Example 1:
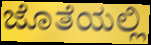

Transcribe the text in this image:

ಜೊತೆಯಲ್ಲಿ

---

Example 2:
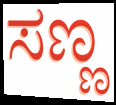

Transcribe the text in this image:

ಸಣ್ಣ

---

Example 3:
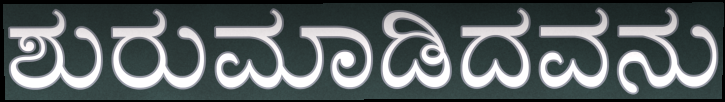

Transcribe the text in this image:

ಶುರುಮಾಡಿದವನು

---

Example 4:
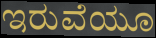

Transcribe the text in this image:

ಇರುವೆಯೂ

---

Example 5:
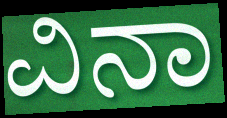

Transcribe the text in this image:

ವಿನಾ